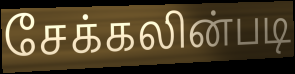
சேக்கலின்படி